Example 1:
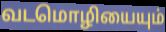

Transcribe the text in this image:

வடமொழியையும்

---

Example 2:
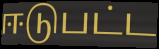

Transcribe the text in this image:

ஈடுபட்ட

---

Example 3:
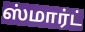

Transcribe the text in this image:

ஸ்மார்ட்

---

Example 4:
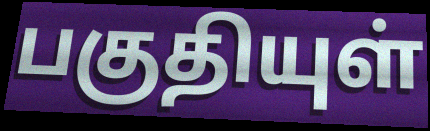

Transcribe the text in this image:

பகுதியுள்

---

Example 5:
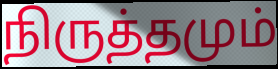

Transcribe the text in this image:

நிருத்தமும்